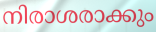
നിരാശരാക്കും